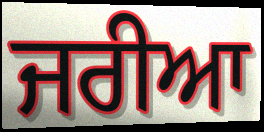
ਜਰੀਆ